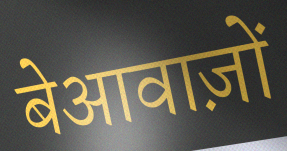
बेआवाज़ों